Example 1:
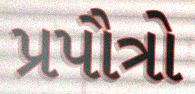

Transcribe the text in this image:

પ્રપૌત્રો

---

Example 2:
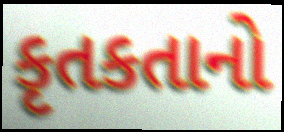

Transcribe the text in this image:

કૃતકતાનો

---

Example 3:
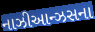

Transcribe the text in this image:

નાઝીઆન્ઝસના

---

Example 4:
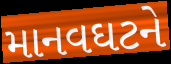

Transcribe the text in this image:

માનવઘટને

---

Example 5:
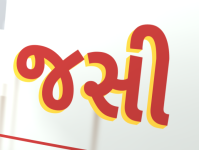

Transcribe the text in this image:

જસી